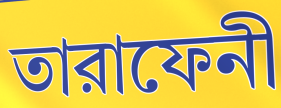
তারাফেনী